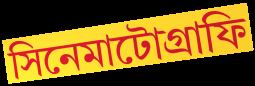
সিনেমাটোগ্রাফি